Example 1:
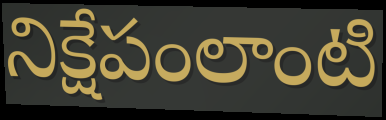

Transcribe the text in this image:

నిక్షేపంలాంటి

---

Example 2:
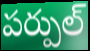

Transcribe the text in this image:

పర్పుల్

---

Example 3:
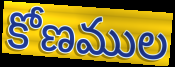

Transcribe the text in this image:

కోణముల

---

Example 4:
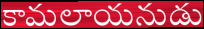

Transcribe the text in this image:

కామలాయనుడు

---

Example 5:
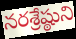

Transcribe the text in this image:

నరశ్రేష్ఠుని